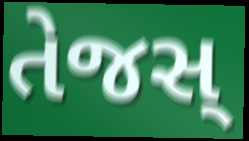
તેજસ્